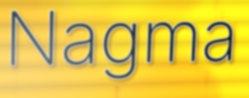
Nagma